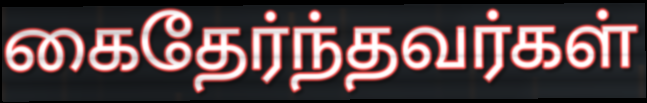
கைதேர்ந்தவர்கள்